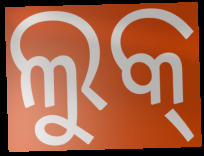
ଲୁକ୍